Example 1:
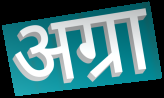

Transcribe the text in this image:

अग्रा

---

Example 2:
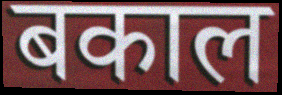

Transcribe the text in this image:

बकाल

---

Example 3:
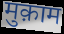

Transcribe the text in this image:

मुक़ाम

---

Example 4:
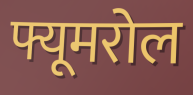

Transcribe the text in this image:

फ्यूमरोल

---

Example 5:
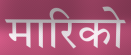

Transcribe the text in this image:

मारिको